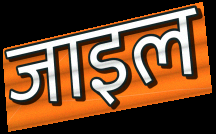
जाइल